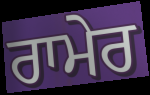
ਰਾਮੇਰ